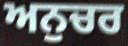
ਅਨੁਚਰ